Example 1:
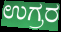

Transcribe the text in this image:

ಉಗ್ರರ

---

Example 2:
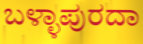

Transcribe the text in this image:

ಬಳ್ಳಾಪುರದಾ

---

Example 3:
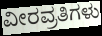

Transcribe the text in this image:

ವೀರವ್ರತಿಗಳು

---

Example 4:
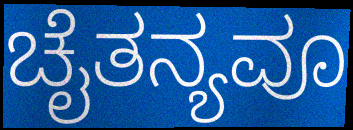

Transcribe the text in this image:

ಚೈತನ್ಯವೂ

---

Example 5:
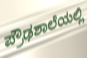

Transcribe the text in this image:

ಪ್ರೌಢಶಾಲೆಯಲ್ಲಿ